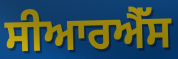
ਸੀਆਰਐੱਸ